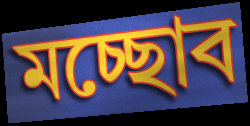
মচ্ছোব